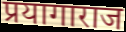
प्रयागाराज